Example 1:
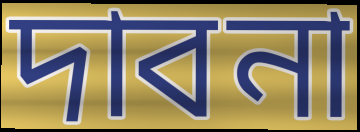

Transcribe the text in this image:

দাবনা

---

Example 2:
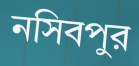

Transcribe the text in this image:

নসিবপুর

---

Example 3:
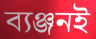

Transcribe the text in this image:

ব্যঞ্জনই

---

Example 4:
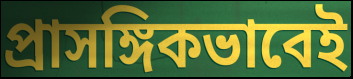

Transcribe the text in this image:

প্রাসঙ্গিকভাবেই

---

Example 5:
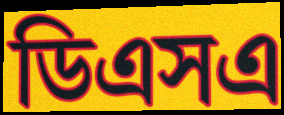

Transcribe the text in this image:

ডিএসএ